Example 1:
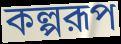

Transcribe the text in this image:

কল্পরূপ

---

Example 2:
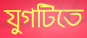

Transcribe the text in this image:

যুগটিতে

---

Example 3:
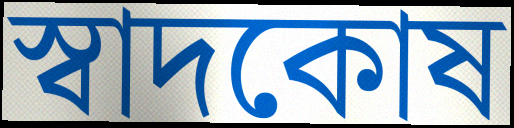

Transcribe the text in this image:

স্বাদকোষ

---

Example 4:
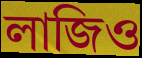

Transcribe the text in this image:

লাজিও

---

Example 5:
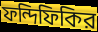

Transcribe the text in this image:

ফন্দিফিকির